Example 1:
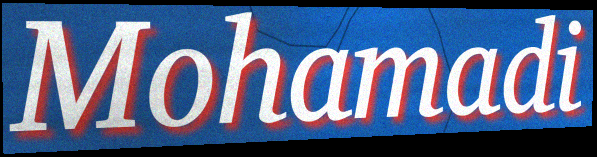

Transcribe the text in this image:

Mohamadi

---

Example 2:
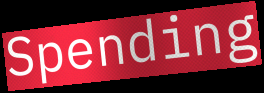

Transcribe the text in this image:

Spending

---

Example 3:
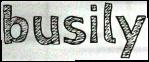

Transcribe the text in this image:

busily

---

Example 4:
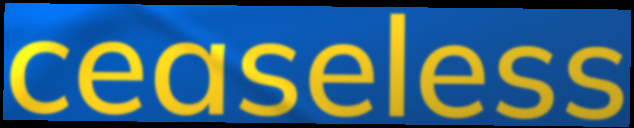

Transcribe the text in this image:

ceaseless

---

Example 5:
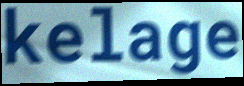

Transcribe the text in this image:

kelage